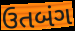
ઉતબંગ